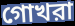
গোখরা